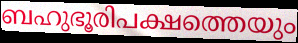
ബഹുഭൂരിപക്ഷത്തെയും